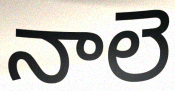
నాలె